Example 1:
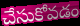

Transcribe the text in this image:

చేసుకోవడం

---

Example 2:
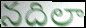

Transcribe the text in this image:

నదిలా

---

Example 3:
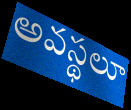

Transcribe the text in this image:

అవస్థలూ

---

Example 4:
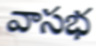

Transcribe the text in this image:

వాసభ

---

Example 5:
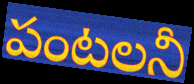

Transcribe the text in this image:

పంటలనీ